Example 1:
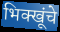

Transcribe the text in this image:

भिक्खूंचे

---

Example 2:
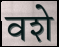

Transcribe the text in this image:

वशे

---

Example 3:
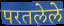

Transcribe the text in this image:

परतलेले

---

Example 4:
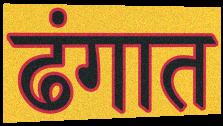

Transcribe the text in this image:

ढंगात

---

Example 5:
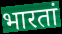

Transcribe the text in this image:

भारतां